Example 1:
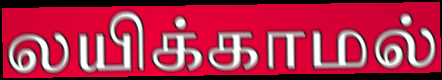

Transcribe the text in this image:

லயிக்காமல்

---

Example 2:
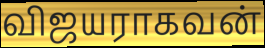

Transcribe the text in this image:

விஜயராகவன்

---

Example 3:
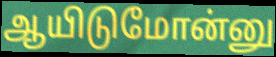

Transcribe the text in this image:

ஆயிடுமோன்னு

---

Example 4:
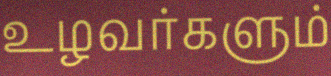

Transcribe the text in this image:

உழவர்களும்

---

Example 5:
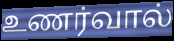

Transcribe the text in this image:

உணர்வால்